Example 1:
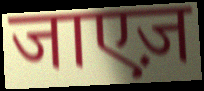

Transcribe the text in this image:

जाएज़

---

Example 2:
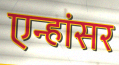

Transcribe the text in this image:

एन्हांसर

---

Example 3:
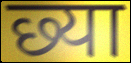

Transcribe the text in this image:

छ्या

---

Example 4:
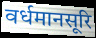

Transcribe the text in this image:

वर्धमानसूरि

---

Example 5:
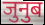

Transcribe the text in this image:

जुनुब